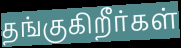
தங்குகிறீர்கள்